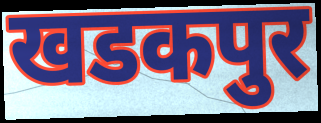
खडकपुर